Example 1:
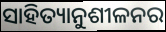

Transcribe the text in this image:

ସାହିତ୍ୟାନୁଶୀଳନର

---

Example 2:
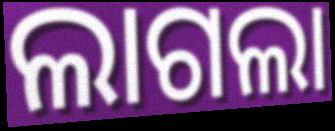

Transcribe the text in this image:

ଲାଗଲା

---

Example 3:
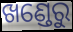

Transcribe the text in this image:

ଖଣ୍ଡେରୁ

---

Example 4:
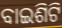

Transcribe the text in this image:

ବାଇଶିଟି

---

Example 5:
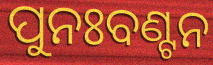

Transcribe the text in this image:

ପୁନଃବଣ୍ଟନ